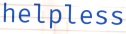
helpless